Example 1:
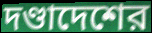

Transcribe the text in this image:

দণ্ডাদেশের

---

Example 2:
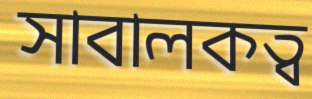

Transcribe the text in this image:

সাবালকত্ব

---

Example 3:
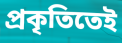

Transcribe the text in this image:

প্রকৃতিতেই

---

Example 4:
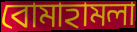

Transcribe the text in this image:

বোমাহামলা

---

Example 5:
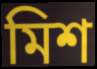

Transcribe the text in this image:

মিশ